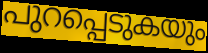
പുറപ്പെടുകയും